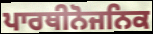
ਪਾਰਥੀਨੋਜਨਿਕ